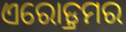
ଏରୋଡ଼୍ରମର